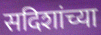
सदिशांच्या